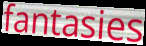
fantasies